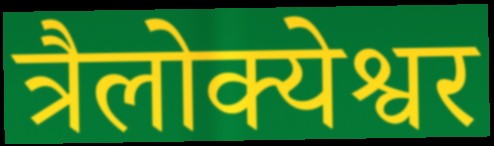
त्रैलोक्येश्वर